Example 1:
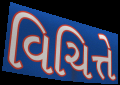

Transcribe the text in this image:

વિચિત્તે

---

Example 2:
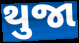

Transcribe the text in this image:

થુજા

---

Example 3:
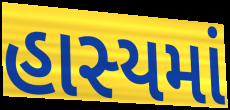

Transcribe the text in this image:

હાસ્યમાં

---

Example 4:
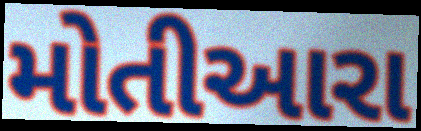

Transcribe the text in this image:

મોતીઆરા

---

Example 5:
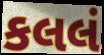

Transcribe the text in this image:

કલલં